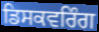
ਡਿਸਕਵਰਿੰਗ